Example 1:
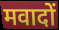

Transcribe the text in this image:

मवादों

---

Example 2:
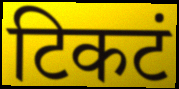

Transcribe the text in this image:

टिकटं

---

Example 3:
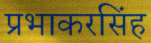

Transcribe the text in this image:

प्रभाकरसिंह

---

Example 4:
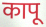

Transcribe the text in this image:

कापू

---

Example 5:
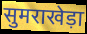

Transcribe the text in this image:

सुमराखेड़ा